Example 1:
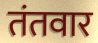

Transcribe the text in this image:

तंतवार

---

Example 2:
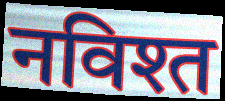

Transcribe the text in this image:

नविश्त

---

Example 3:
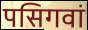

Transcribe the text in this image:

पसिगवां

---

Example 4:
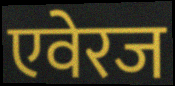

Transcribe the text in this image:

एवेरज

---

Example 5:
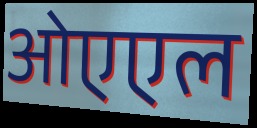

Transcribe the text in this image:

ओएएल